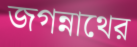
জগন্নাথের